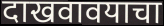
दाखवावयाचा